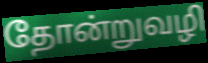
தோன்றுவழி